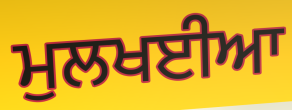
ਮੁਲਖਈਆ